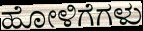
ಹೋಳಿಗೆಗಳು